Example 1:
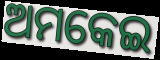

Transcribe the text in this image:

ଅମକେଇ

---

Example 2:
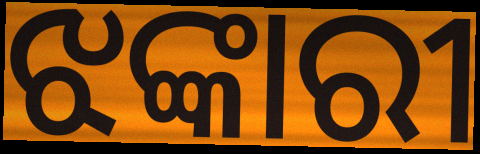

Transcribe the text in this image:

ଝଙ୍କାରୀ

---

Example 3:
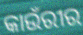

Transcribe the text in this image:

କାଉଁରୀର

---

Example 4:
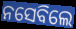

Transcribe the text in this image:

ନସେବିଲେ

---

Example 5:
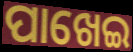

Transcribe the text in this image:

ପାଖେଇ